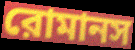
রোমানস